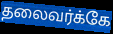
தலைவர்க்கே